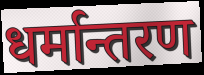
धर्मान्तरण